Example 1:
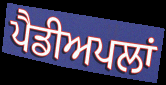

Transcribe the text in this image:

ਪੈਡੀਅਪਲਾਂ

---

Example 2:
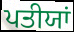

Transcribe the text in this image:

ਪਤੀਯਾਂ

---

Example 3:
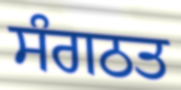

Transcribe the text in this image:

ਸੰਗਠਤ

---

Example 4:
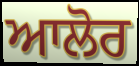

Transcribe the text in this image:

ਆਲੋਰ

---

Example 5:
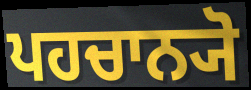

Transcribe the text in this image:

ਪਹਚਾਨ੍ਯੋ